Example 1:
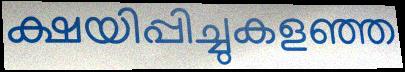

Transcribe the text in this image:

ക്ഷയിപ്പിച്ചുകളഞ്ഞ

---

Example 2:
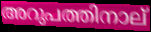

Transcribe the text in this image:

അറുപത്തിനാല്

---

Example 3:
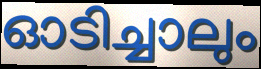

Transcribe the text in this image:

ഓടിച്ചാലും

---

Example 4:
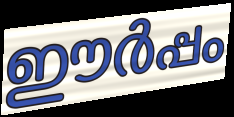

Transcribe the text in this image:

ഈർപ്പം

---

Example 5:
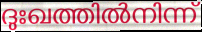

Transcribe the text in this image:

ദുഃഖത്തിൽനിന്ന്